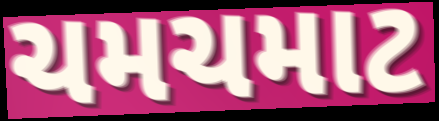
ચમચમાટ